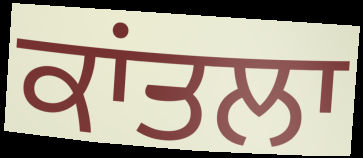
ਕਾਂਤਲਾ